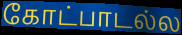
கோட்பாடல்ல